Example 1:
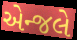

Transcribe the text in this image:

એન્જલે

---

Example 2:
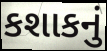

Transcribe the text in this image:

કશાકનું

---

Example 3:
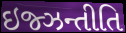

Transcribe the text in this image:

ઇજ્ઝન્તીતિ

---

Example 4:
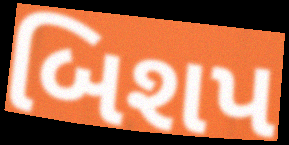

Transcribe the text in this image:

બિશપ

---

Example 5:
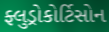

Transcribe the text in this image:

ફ્લુડ્રોકોર્ટિસોન